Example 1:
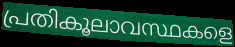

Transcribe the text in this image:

പ്രതികൂലാവസ്ഥകളെ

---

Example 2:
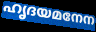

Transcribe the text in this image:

ഹൃദയമനേന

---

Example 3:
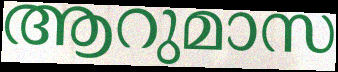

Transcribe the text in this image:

ആറുമാസ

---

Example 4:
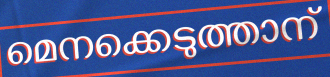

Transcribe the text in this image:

മെനക്കെടുത്താന്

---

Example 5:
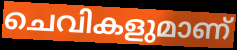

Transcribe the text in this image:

ചെവികളുമാണ്